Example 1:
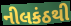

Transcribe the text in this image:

નીલકંઠથી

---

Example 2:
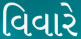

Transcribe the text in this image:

વિવારે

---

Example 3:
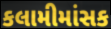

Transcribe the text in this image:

કલામીમાંસક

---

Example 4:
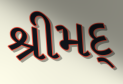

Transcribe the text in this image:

શ્રીમદ્‍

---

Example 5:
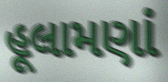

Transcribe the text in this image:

હૂલામણાં